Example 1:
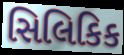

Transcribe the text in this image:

સિલિકિક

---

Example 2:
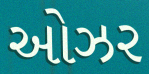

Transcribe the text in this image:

ઓઝર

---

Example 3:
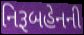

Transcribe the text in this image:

નિરૂબહેનની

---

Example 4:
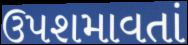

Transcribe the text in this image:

ઉપશમાવતાં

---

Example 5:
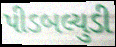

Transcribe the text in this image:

પીડબલ્યુડી